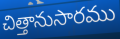
చిత్తానుసారము